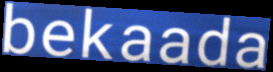
bekaada